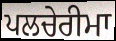
ਪਲਚੇਰੀਮਾ